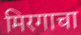
मिरगाचा